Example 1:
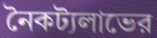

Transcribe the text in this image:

নৈকট্যলাভের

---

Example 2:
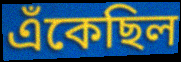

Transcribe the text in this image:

এঁকেছিল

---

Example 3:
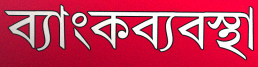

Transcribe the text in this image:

ব্যাংকব্যবস্থা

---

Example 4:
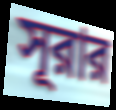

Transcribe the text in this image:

সূরার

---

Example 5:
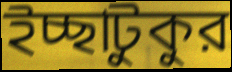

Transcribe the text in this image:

ইচ্ছাটুকুর